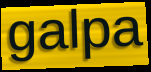
galpa